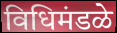
विधिमंडळे